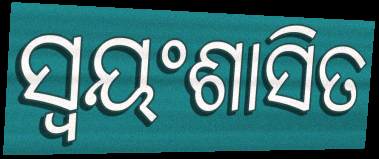
ସ୍ବୟଂଶାସିତ